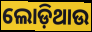
ଲୋଡ଼ିଥାଉ